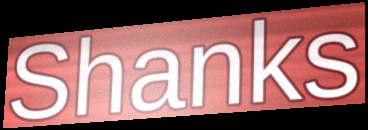
Shanks